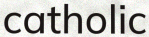
catholic